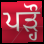
ਪੜ੍ਹੌ